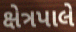
ક્ષેત્રપાલે